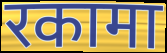
रकामा